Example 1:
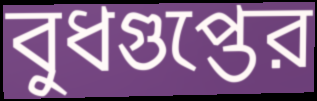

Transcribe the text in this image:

বুধগুপ্তের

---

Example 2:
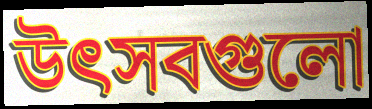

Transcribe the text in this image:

উৎসবগুলো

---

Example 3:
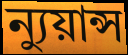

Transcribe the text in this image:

ন্যুয়ান্স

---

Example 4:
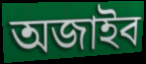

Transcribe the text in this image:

অজাইব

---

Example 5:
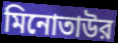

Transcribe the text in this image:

মিনোতাউর